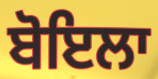
ਬੋਇਲਾ